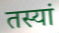
तस्यां